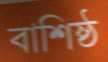
বাশিষ্ঠ